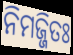
ନିମଜ୍ଜିତଃ